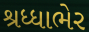
શ્રધ્ધાભેર